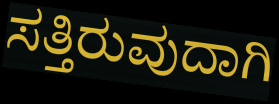
ಸತ್ತಿರುವುದಾಗಿ